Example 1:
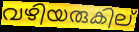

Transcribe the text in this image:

വഴിയരുകില്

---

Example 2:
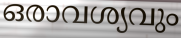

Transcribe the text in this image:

ഒരാവശ്യവും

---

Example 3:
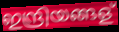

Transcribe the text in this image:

ഇന്ദ്രിയങ്ങള്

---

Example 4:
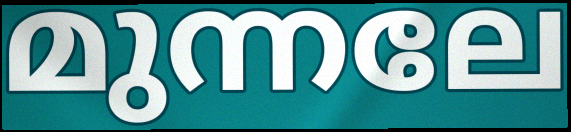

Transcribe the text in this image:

മുന്നലേ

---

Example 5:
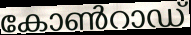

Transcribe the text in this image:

കോൺറാഡ്